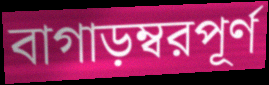
বাগাড়ম্বরপূর্ণ